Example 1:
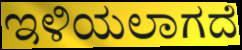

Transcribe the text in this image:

ಇಳಿಯಲಾಗದೆ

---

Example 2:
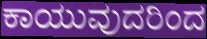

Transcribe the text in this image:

ಕಾಯುವುದರಿಂದ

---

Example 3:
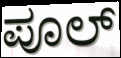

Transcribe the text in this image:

ಪೂಲ್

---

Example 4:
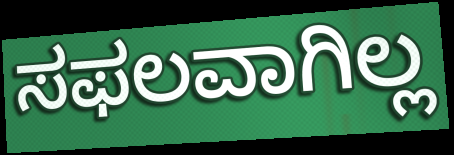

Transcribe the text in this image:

ಸಫಲವಾಗಿಲ್ಲ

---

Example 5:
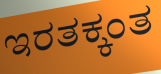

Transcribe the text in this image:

ಇರತಕ್ಕಂತ